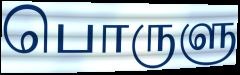
பொருளு